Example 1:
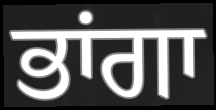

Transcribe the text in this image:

ਭਾਂਗਾ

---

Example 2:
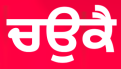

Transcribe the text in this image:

ਚਉਕੈ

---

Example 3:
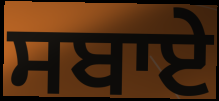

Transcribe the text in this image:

ਸਬਾਏ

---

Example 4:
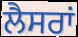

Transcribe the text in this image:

ਲੈਸਰਾਂ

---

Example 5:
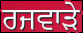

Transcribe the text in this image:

ਰਜਵਾੜੇ